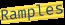
Ramples